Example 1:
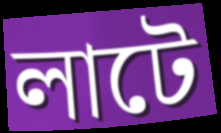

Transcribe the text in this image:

লাটে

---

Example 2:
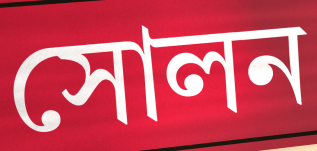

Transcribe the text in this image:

সোলন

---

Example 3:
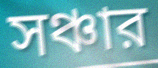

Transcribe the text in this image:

সঞ্চার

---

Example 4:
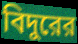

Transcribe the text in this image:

বিদুরের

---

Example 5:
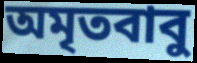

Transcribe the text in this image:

অমৃতবাবু